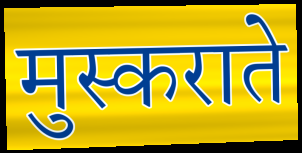
मुस्कराते